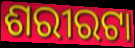
ଶରୀରଟା